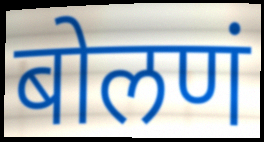
बोलणं